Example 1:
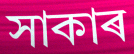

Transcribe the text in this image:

সাকাৰ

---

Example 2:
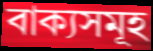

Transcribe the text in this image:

বাক্যসমূহ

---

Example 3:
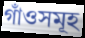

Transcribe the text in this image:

গাঁওসমূহ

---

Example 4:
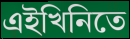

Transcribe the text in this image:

এইখিনিতে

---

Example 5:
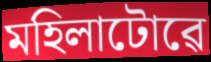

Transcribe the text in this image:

মহিলাটোৱে